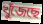
খুঁজেছে